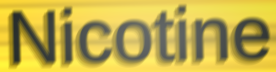
Nicotine